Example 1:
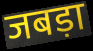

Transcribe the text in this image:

जबड़ा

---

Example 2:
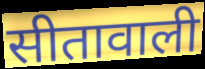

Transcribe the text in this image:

सीतावाली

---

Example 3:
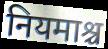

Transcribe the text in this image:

नियमाश्च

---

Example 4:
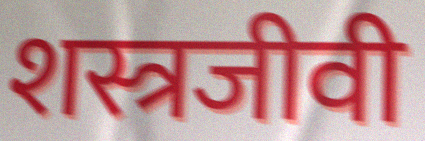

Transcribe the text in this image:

शस्त्रजीवी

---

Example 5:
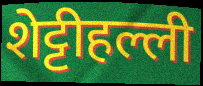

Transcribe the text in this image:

शेट्टीहल्ली